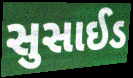
સુસાઈડ